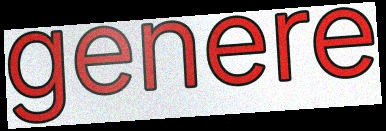
genere